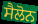
ਸੈਲੋਨ